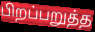
பிறப்பறுத்த